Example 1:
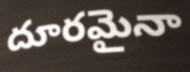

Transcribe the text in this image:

దూరమైనా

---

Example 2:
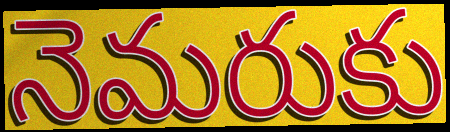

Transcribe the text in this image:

నెమరుకు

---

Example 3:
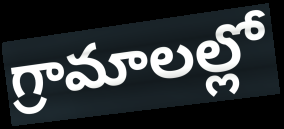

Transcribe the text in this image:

గ్రామాలల్లో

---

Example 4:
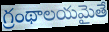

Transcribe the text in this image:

గ్రంథాలయమైతే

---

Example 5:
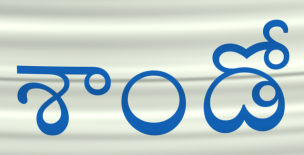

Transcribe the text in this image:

శాండో